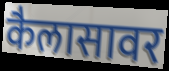
कैलासावर